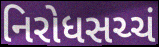
નિરોધસચ્ચં